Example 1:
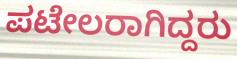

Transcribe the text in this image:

ಪಟೇಲರಾಗಿದ್ದರು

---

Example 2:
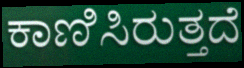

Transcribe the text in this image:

ಕಾಣಿಸಿರುತ್ತದೆ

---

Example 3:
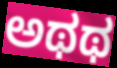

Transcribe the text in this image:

ಅಥಥ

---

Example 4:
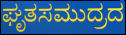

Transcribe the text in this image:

ಘೃತಸಮುದ್ರದ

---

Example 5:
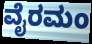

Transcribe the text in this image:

ವೈರಮಂ